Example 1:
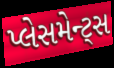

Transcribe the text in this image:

પ્લેસમેન્ટ્સ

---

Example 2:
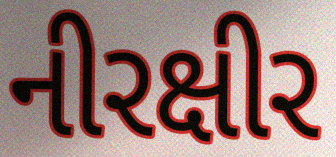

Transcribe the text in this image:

નીરક્ષીર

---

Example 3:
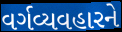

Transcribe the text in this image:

વર્ગવ્યવહારને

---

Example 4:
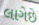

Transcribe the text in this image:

લાગેછે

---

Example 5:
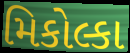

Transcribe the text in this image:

મિકોલ્કા